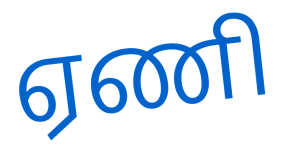
ஏணி